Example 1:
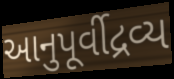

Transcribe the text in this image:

આનુપૂર્વીદ્રવ્ય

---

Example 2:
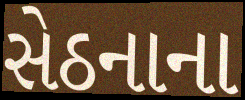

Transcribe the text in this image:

સેઠનાના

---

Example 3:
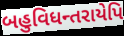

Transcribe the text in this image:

બહુવિધન્તરાયેપિ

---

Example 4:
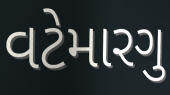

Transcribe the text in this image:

વટેમારગુ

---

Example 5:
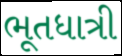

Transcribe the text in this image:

ભૂતધાત્રી